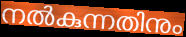
നൽകുന്നതിനും